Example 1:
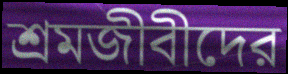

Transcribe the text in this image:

শ্রমজীবীদের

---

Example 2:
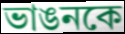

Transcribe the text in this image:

ভাঙনকে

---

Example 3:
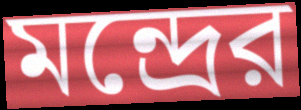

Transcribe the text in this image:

মন্দ্রের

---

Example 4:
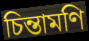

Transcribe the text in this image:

চিন্তামণি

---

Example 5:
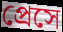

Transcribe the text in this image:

প্রেসে